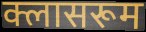
क्लासरूम